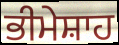
ਭੀਮੇਸ਼ਾਹ